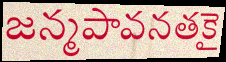
జన్మపావనతకై